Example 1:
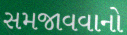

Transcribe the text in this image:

સમજાવવાનો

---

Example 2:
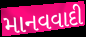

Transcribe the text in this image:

માનવવાદી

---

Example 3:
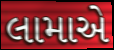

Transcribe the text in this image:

લામાએ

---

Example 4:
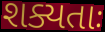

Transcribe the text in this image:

શક્યતાઃ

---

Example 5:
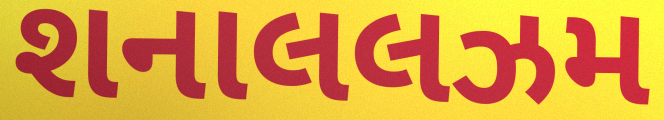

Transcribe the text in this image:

શનાલલઝમ